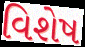
વિશેષ